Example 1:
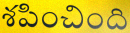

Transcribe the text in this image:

శపించింది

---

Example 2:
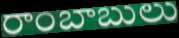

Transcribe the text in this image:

రాంబాబులు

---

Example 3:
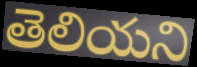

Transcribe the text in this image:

తెలియని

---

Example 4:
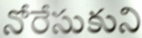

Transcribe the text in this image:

నోరేసుకుని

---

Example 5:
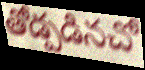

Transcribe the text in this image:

తోడ్పడినచో